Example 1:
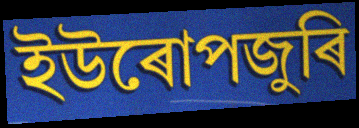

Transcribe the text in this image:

ইউৰোপজুৰি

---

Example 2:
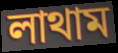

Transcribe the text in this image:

লাথাম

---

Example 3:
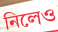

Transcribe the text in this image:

নিলেও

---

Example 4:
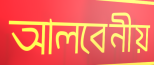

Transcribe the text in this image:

আলবেনীয়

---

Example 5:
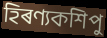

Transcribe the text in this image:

হিৰণ্যকশিপু